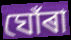
ঘোঁৰা